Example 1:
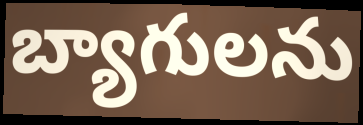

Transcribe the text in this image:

బ్యాగులను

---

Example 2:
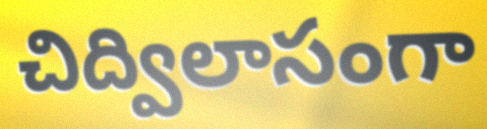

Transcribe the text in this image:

చిద్విలాసంగా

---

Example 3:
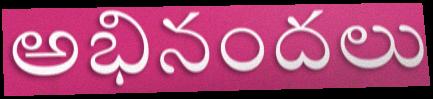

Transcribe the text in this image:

అభినందలు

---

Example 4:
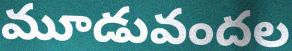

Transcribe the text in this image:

మూడువందల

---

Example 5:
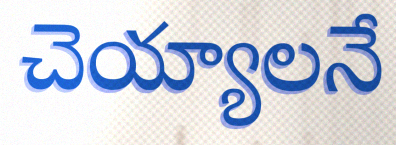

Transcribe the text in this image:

చెయ్యాలనే